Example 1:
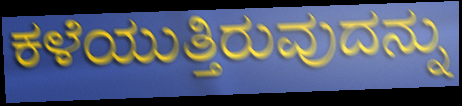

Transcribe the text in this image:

ಕಳೆಯುತ್ತಿರುವುದನ್ನು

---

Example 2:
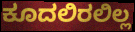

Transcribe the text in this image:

ಕೂದಲಿರಲಿಲ್ಲ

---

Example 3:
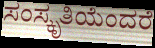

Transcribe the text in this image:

ಸಂಸ್ಕೃತಿಯೆಂದರೆ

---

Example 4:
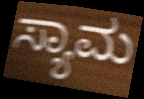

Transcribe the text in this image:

ಸ್ಯಾಮ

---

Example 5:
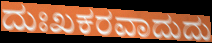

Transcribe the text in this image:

ದುಃಖಕರವಾದುದು